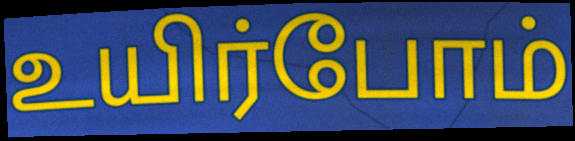
உயிர்போம்